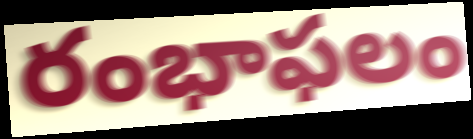
రంభాఫలం